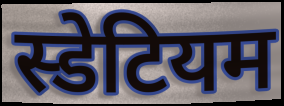
स्डेटियम